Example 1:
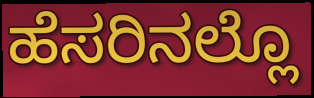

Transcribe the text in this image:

ಹೆಸರಿನಲ್ಲೊ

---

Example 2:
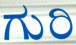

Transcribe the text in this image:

ಗುರಿ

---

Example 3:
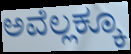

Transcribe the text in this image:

ಅವೆಲ್ಲಕ್ಕೂ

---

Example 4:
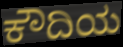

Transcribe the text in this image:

ಕೌದಿಯ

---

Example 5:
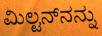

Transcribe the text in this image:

ಮಿಲ್ಟನ್‌ನನ್ನು